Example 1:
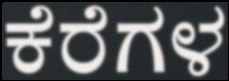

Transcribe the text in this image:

ಕೆರೆಗಳ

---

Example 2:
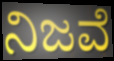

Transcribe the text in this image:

ನಿಜವೆ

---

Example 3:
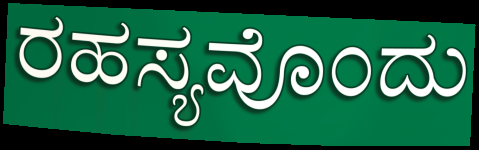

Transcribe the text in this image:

ರಹಸ್ಯವೊಂದು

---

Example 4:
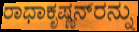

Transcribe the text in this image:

ರಾಧಾಕೃಷ್ಣನ್‌ರನ್ನು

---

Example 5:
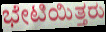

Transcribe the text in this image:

ಭೇಟಿಯಿತ್ತರು